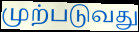
முற்படுவது